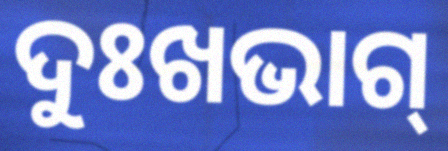
ଦୁଃଖଭାଗ୍